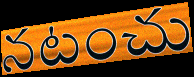
నటంచు